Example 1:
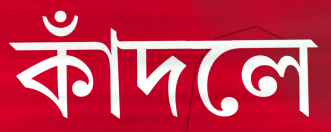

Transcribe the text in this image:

কাঁদলে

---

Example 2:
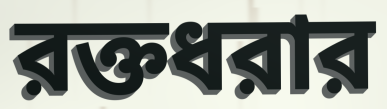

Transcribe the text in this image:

রক্তধরার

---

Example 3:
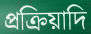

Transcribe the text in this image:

প্রক্রিয়াদি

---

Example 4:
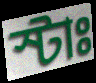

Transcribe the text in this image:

স্টাঃ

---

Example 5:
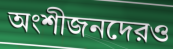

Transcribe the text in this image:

অংশীজনদেরও